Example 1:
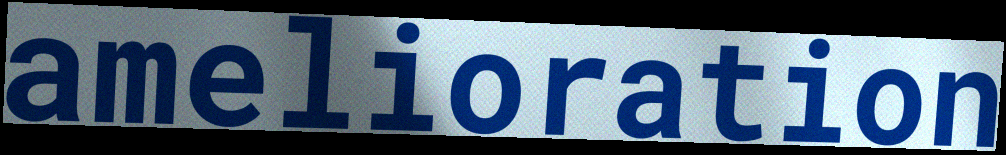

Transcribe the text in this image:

amelioration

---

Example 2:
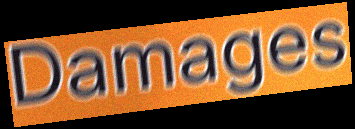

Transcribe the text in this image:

Damages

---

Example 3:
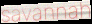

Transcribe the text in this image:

savannah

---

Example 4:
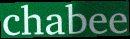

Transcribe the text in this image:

chabee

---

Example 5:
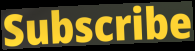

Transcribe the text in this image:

Subscribe